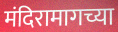
मंदिरामागच्या